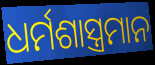
ଧର୍ମଶାସ୍ତ୍ରମାନ